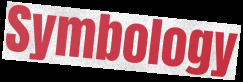
Symbology